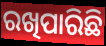
ରଖିପାରିଛି